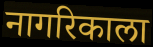
नागरिकाला